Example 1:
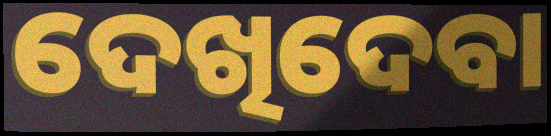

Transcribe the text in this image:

ଦେଖିଦେବା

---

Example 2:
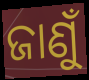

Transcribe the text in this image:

ଜାଣୁଁ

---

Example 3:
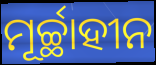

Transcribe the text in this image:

ମୂର୍ଚ୍ଛାହୀନ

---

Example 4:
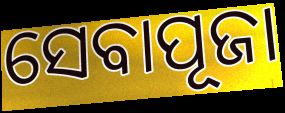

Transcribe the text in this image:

ସେବାପୂଜା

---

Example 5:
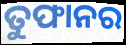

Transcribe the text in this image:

ତୁଫାନର